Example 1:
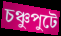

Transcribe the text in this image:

চঞ্চুপুটে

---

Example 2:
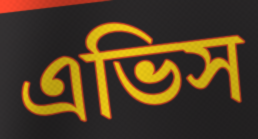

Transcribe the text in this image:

এভিস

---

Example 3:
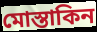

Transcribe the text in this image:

মোস্তাকিন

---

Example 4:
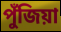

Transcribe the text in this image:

পুঁজিয়া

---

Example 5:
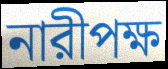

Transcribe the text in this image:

নারীপক্ষ